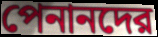
পেনানদের